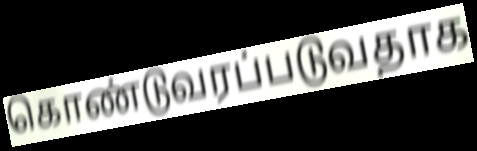
கொண்டுவரப்படுவதாக